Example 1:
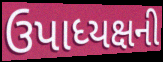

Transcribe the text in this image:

ઉપાધ્યક્ષની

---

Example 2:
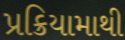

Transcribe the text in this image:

પ્રક્રિયામાથી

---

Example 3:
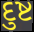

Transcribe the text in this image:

દુષ્ટ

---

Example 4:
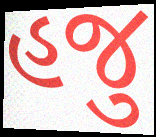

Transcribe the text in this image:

હજુ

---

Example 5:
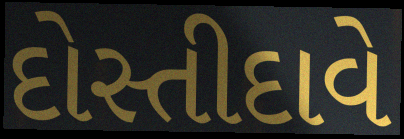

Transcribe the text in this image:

દોસ્તીદાવે